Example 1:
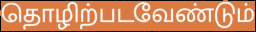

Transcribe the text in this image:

தொழிற்படவேண்டும்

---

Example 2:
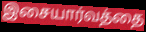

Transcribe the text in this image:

இசையார்வத்தை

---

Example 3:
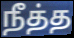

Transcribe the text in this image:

நீத்த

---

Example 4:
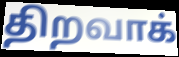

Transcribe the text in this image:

திறவாக்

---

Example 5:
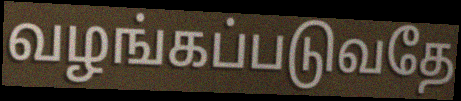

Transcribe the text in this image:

வழங்கப்படுவதே